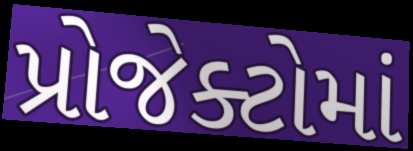
પ્રોજેક્ટોમાં